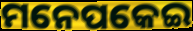
ମନେପକେଇ